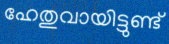
ഹേതുവായിട്ടുണ്ട്